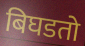
बिघडतो